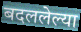
बदललेल्या